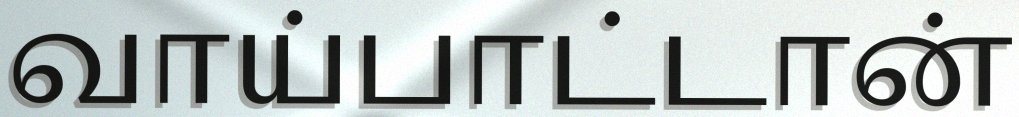
வாய்பாட்டான்